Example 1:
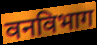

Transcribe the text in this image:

वनविभाग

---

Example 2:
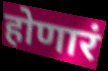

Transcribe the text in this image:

होणारं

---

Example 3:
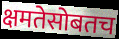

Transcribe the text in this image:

क्षमतेसोबतच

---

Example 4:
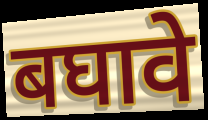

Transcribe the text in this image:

बघावे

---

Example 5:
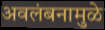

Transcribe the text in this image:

अवलंबनामुळे